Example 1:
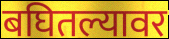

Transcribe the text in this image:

बघितल्यावर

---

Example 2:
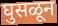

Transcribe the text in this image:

घुसळून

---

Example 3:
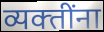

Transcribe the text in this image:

व्यक्‍तींना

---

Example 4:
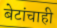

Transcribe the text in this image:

बेटांचाही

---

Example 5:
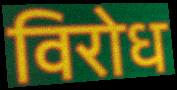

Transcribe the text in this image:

विरोध